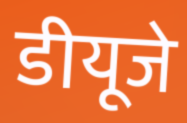
डीयूजे